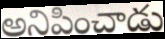
అనిపించాడు